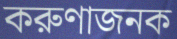
করুণাজনক